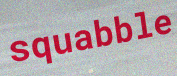
squabble